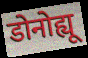
डोनोह्यू